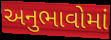
અનુભાવોમાં